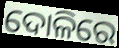
ଦୋଳିରେ